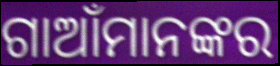
ଗାଆଁମାନଙ୍କର